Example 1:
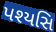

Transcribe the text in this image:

પશ્યસિ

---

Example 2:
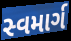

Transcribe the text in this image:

સ્વમાર્ગ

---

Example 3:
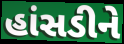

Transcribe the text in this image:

હાંસડીને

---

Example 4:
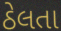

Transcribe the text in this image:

ઠેલતા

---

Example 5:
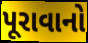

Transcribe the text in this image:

પૂરાવાનો